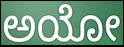
ಅಯೋ